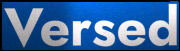
Versed